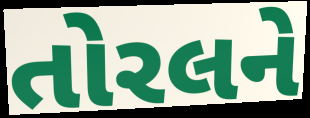
તોરલને